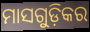
ମାସଗୁଡ଼ିକର